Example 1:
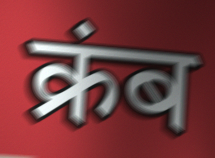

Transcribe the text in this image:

क्रंब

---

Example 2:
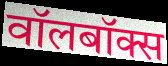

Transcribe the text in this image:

वॉलबॉक्स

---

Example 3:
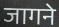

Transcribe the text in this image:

जागने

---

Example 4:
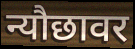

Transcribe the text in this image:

न्यौछावर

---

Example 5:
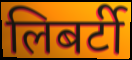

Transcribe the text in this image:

लिबर्टी